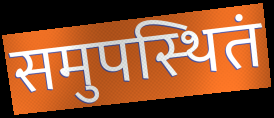
समुपस्थितं